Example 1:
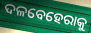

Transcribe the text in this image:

ଦଳବେହେରାକୁ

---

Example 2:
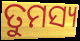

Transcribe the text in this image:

ତୁମସ୍ୟ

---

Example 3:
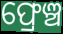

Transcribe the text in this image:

ଫ୍ରେଞ୍ଚ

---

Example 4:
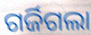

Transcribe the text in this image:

ଗର୍ଜିଗଲା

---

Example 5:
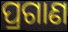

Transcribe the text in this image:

ପ୍ରଗାଣ